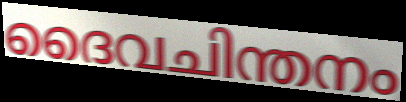
ദൈവചിന്തനം